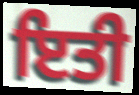
ਇਤੀ